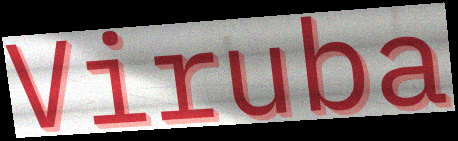
Viruba